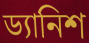
ড্যানিশ